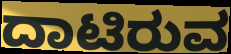
ದಾಟಿರುವ